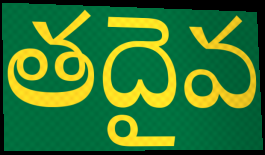
తదైవ